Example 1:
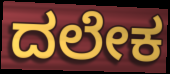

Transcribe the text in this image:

ದಲೇಕ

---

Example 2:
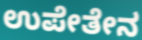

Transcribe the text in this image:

ಉಪೇತೇನ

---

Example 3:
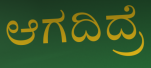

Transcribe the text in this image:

ಆಗದಿದ್ರೆ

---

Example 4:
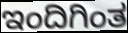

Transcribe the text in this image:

ಇಂದಿಗಿಂತ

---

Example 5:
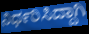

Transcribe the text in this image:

ನಿರ್ಧರಿಸಿದ್ದಾಗಿ